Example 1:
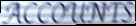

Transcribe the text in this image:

ACCOUNTS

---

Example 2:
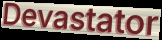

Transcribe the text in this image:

Devastator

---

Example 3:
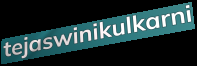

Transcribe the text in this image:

tejaswinikulkarni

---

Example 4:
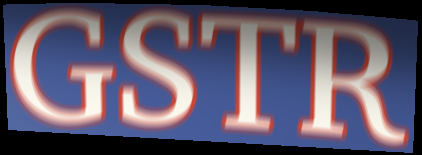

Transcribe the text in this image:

GSTR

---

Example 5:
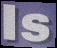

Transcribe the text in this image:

Is